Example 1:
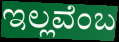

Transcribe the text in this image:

ಇಲ್ಲವೆಂಬ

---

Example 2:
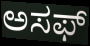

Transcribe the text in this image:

ಅಸಫ್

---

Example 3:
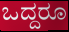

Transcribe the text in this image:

ಒದ್ದರೂ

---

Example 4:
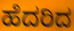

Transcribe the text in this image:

ಹೆದರಿದ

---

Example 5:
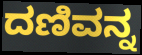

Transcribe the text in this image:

ದಣಿವನ್ನ